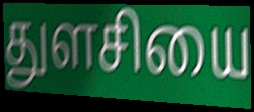
துளசியை